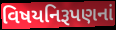
વિષયનિરૂપણનાં